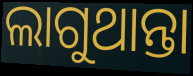
ଲାଗୁଥାନ୍ତା